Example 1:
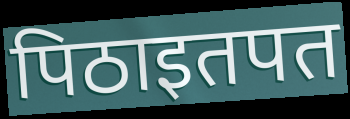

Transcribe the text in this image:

पिठाइतपत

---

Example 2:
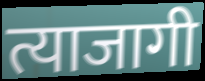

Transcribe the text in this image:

त्याजागी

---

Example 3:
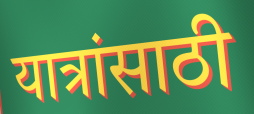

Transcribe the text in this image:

यात्रांसाठी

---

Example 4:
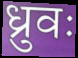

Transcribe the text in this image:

ध्रुवः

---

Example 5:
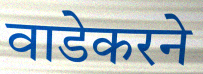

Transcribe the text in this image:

वाडेकरने